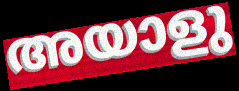
അയാളു